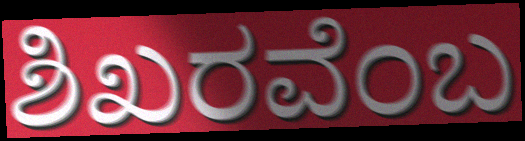
ಶಿಖರವೆಂಬ